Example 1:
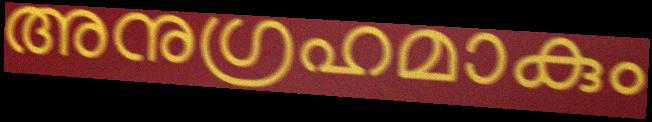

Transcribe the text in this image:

അനുഗ്രഹമാകും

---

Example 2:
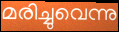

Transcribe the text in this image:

മരിച്ചുവെന്നു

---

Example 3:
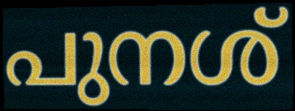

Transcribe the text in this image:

പുനശ്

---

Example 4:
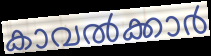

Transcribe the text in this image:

കാവൽക്കാർ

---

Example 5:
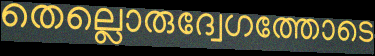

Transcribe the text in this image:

തെല്ലൊരുദ്വേഗത്തോടെ